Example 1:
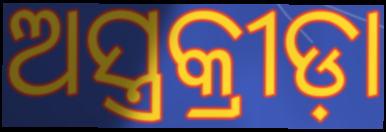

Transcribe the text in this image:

ଅସ୍ତ୍ରକ୍ରୀଡ଼ା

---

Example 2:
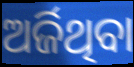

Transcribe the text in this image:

ଅର୍ଜିଥିବା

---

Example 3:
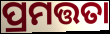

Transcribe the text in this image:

ପ୍ରମତ୍ତତା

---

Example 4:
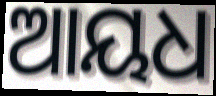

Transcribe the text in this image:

ଆୟଧ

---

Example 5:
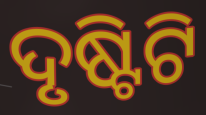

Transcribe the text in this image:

ଦୃଷ୍ଟିଟି